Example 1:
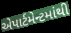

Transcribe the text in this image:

એપાર્ટમેન્ટમાંથી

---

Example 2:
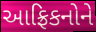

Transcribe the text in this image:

આફ્રિકનોને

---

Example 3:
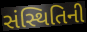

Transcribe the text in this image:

સંસ્થિતિની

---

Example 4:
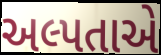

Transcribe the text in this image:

અલ્પતાએ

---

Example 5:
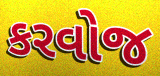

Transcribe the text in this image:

કરવોજ